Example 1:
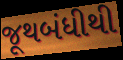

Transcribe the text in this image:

જૂથબંધીથી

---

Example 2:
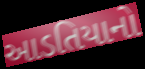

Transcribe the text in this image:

આડતિયાનો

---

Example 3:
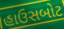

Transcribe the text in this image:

હાઉસબોટ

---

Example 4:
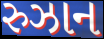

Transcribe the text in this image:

રુઝાન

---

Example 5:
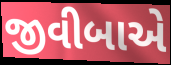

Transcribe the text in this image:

જીવીબાએ